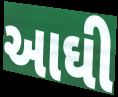
આઘી